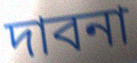
দাবনা